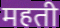
महती